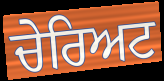
ਚੇਰਿਅਟ